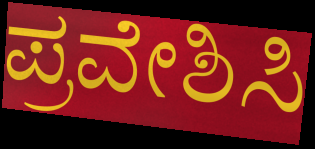
ಪ್ರವೇಶಿಸಿ